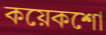
কয়েকশো